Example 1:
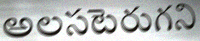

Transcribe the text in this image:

అలసటెరుగని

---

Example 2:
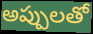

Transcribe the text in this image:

అప్పులతో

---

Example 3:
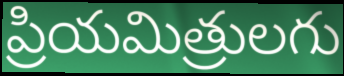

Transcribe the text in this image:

ప్రియమిత్రులగు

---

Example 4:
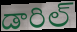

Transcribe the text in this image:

డారిల్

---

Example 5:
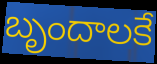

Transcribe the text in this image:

బృందాలకే